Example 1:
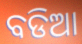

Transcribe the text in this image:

ବଡିଆ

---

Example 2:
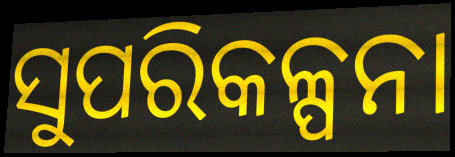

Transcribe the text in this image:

ସୁପରିକଳ୍ପନା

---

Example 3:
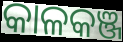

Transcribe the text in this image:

କାଳକଞ୍ଜ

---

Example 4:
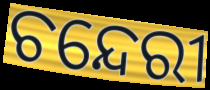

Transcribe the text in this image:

ଚନ୍ଦେରୀ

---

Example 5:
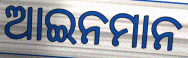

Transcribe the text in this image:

ଆଇନମାନ